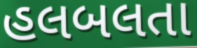
હલબલતા